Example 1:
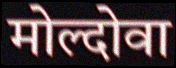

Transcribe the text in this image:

मोल्दोवा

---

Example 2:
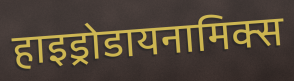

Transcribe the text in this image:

हाइड्रोडायनामिक्स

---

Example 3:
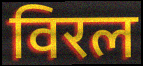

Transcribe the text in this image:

विरल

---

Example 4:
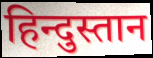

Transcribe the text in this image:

हिन्‍दुस्‍तान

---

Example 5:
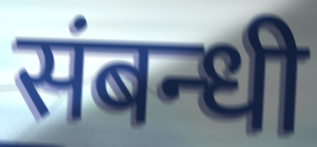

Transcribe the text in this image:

संबन्‍धी